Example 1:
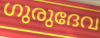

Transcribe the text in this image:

ഗുരുദേവ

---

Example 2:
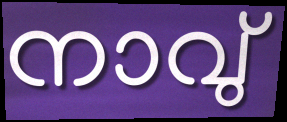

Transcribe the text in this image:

നാവു്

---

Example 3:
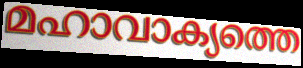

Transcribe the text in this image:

മഹാവാക്യത്തെ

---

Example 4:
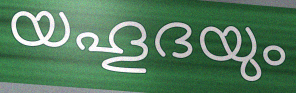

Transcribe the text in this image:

യഹൂദയും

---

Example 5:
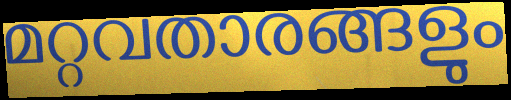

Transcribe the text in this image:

മറ്റവതാരങ്ങളും